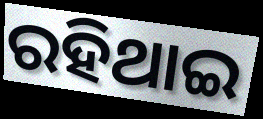
ରହିଥାଇ